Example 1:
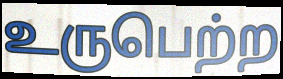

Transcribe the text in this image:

உருபெற்ற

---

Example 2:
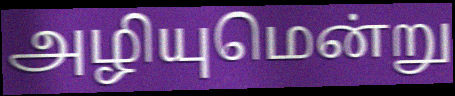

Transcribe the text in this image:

அழியுமென்று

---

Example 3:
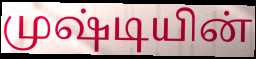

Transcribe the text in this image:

முஷ்டியின்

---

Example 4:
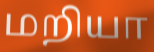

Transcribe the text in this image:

மறியா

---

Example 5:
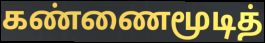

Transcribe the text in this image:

கண்ணைமூடித்